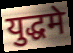
युद्धमे